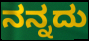
ನನ್ನದು